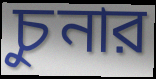
চুনার